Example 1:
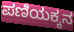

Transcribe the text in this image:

ಪಣಿಯಕ್ಕನ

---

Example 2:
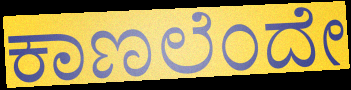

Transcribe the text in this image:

ಕಾಣಲೆಂದೇ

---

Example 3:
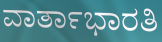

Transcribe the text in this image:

ವಾರ್ತಾಭಾರತಿ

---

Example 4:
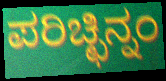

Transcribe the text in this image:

ಪರಿಚ್ಛಿನ್ನಂ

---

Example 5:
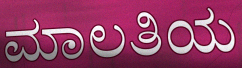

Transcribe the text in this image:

ಮಾಲತಿಯ